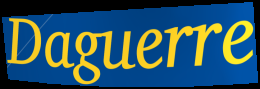
Daguerre